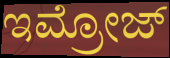
ಇಮ್ರೋಜ್